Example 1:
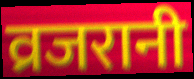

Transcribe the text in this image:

व्रजरानी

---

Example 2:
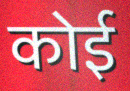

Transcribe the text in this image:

कोई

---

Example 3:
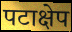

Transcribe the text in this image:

पटाक्षेप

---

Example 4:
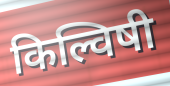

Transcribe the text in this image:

किल्विषी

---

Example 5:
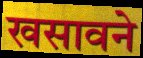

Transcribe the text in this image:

खसावने